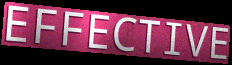
EFFECTIVE